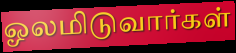
ஓலமிடுவார்கள்